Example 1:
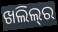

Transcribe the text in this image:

ଖଲିଲ୍‍ର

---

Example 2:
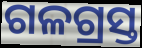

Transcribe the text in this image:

ଗଳଗ୍ରସ୍ତ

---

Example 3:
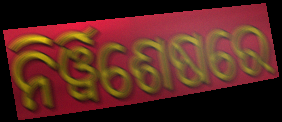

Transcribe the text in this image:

ନିର୍ୱିଶେଷରେ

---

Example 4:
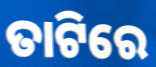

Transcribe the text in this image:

ତାଟିରେ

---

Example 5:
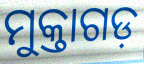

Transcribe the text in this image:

ମୁକ୍ତାଗଡ଼